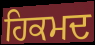
ਹਿਕਮਦ